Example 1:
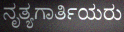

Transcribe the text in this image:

ನೃತ್ಯಗಾರ್ತಿಯರು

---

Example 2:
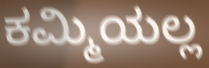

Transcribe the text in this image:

ಕಮ್ಮಿಯಲ್ಲ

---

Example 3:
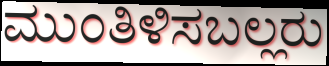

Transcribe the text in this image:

ಮುಂತಿಳಿಸಬಲ್ಲರು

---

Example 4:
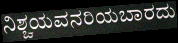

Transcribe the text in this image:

ನಿಶ್ಚಯವನರಿಯಬಾರದು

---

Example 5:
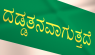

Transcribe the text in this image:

ದಡ್ಡತನವಾಗುತ್ತದೆ